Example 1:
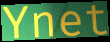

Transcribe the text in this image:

Ynet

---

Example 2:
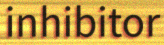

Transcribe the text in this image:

inhibitor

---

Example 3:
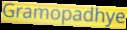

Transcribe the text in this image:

Gramopadhye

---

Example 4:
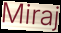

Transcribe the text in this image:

Miraj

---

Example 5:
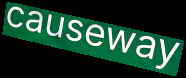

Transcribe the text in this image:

causeway